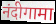
नंदीगामा